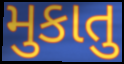
મુકાતુ